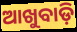
ଆଖୁବାଡ଼ି